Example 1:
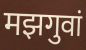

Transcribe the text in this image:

मझगुवां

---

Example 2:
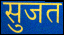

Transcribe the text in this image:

सुजत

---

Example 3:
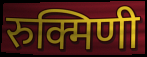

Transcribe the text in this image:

रुक्मिणी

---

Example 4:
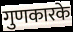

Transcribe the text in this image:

गुणकारके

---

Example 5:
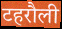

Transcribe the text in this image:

टहरौली